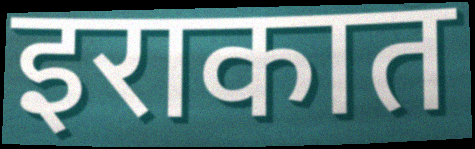
इराकात